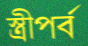
স্ত্রীপর্ব